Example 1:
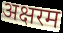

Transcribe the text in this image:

अक्षरम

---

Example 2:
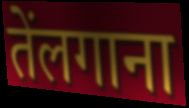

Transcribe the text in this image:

तेंलगाना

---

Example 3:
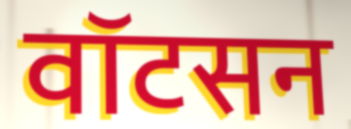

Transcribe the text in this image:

वॉटसन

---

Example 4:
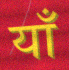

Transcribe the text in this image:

याँ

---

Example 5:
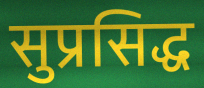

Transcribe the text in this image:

सुप्रसिद्ध